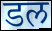
डल